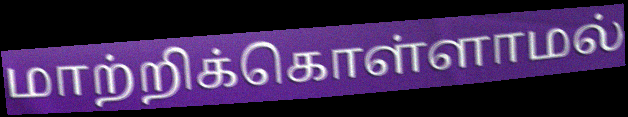
மாற்றிக்கொள்ளாமல்